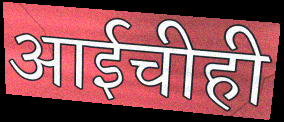
आईचीही